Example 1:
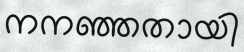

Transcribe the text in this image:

നനഞ്ഞതായി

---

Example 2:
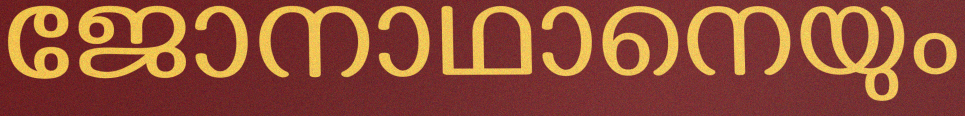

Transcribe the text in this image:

ജോനാഥാനെയും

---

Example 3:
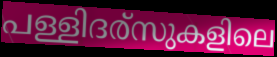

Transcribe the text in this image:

പള്ളിദര്സുകളിലെ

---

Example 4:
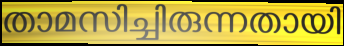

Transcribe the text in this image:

താമസിച്ചിരുന്നതായി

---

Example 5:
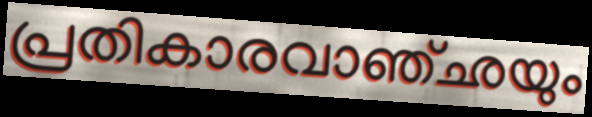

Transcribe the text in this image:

പ്രതികാരവാഞ്ഛയും